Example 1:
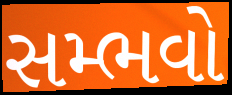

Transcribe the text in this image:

સમ્ભવો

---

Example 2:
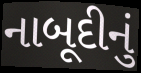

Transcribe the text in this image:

નાબૂદીનું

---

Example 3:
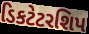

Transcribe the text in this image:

ડિકટેટરશિપ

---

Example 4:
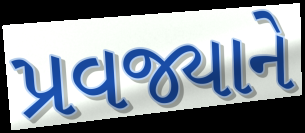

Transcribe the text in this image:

પ્રવજ્યાને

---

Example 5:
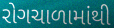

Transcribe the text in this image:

રોગચાળામાંથી